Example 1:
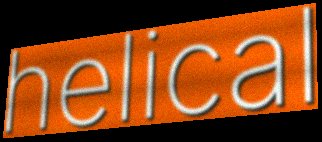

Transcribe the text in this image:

helical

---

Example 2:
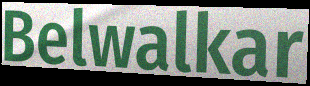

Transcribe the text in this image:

Belwalkar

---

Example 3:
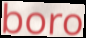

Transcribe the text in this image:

boro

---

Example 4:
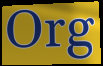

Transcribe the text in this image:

Org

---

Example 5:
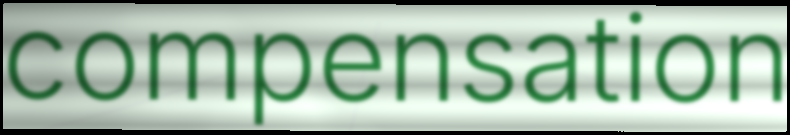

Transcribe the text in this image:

compensation